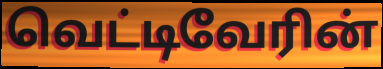
வெட்டிவேரின்